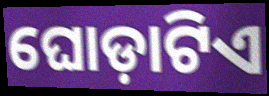
ଘୋଡ଼ାଟିଏ